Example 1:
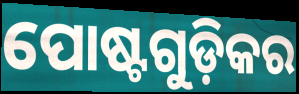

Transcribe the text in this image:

ପୋଷ୍ଟଗୁଡ଼ିକର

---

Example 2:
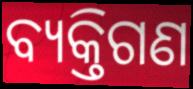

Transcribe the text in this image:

ବ୍ଯକ୍ତିଗଣ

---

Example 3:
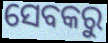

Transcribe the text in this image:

ସେବକରୁ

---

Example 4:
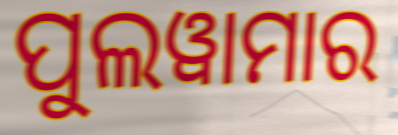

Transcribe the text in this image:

ପୁଲୱାମାର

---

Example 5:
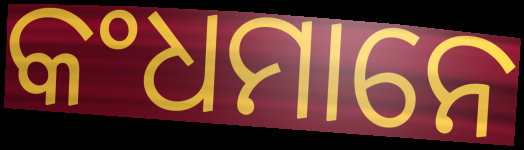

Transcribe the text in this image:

କଂଧମାନେ